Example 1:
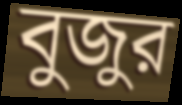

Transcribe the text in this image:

বুজুর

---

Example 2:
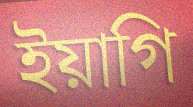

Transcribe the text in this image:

ইয়াগি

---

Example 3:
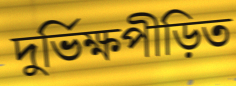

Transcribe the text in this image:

দুর্ভিক্ষপীড়িত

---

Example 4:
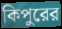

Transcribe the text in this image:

কিপুরের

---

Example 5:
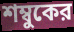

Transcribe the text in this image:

শম্বুকের